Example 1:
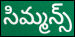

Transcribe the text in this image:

సిమ్మన్స్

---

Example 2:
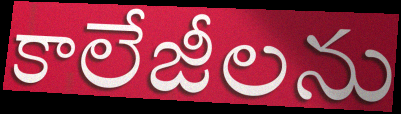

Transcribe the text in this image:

కాలేజీలను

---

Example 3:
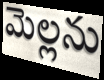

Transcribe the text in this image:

మెల్లను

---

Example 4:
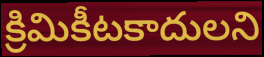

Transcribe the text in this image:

క్రిమికీటకాదులని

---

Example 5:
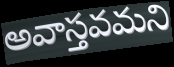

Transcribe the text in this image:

అవాస్తవమని